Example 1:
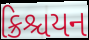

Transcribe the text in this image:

ક્રિશ્ચયન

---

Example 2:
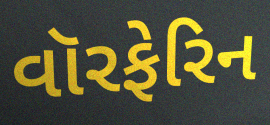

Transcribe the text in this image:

વૉરફેરિન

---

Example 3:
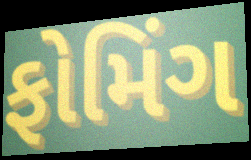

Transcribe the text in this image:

ફોમિંગ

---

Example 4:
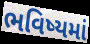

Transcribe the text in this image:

ભવિષ્યમાં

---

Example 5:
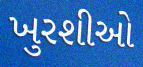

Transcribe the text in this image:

ખુરશીઓ